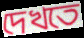
দেখতে